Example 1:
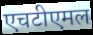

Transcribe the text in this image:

एचटीएमल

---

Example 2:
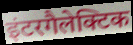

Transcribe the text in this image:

इंटरगैलेक्टिक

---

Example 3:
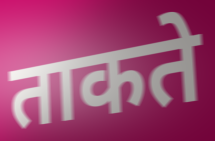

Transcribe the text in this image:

ताकते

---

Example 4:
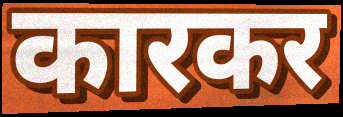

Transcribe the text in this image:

कारकर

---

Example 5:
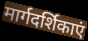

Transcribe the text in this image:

मार्गदर्शिकाएं